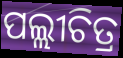
ପଲ୍ଲୀଚିତ୍ର